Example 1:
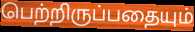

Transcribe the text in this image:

பெற்றிருப்பதையும்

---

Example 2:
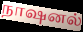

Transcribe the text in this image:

நாஷனல்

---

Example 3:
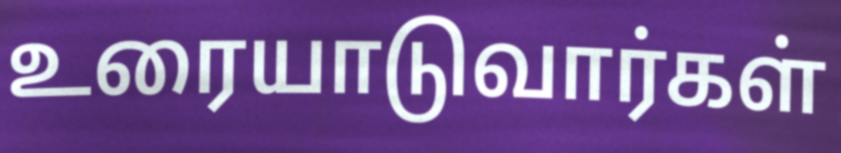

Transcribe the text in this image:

உரையாடுவார்கள்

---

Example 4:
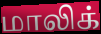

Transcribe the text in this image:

மாலிக்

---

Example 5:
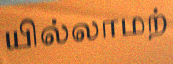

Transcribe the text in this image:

யில்லாமற்